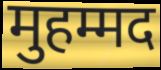
मुहम्‍मद